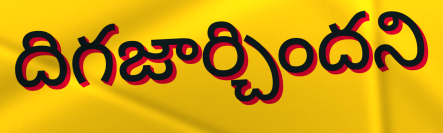
దిగజార్చిందని